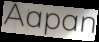
Aapan